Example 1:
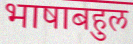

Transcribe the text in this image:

भाषाबहुल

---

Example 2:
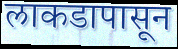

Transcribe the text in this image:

लाकडापासून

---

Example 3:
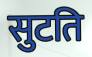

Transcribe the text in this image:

सुटति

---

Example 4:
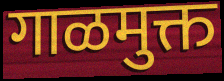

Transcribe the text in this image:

गाळमुक्त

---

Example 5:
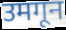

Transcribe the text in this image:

उमगून